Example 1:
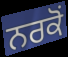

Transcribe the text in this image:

ਨਰਕੋਂ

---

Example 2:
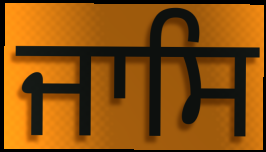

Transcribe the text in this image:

ਜਾਸਿ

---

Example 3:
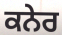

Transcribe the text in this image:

ਕਨੇਰ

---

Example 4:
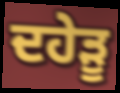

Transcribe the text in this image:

ਦਹੇੜੂ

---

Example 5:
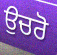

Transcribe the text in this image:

ਉਚਰੋ